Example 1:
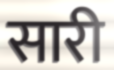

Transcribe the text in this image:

सारी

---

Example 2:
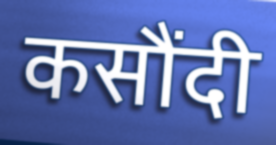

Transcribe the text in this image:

कसौंदी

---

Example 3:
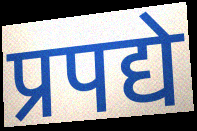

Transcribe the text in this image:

प्रपद्ये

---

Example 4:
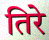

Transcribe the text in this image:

तिरे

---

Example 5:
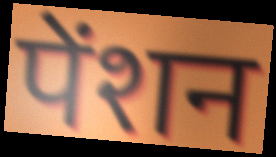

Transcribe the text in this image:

पेंशन